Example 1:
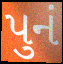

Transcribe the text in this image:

પુનં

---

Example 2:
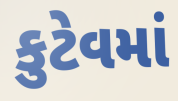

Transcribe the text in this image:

કુટેવમાં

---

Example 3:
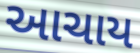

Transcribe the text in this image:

આચાય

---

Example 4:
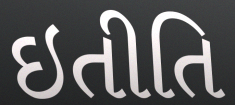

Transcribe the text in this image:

ઇતીતિ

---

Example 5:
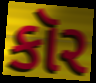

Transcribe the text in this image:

કૉર